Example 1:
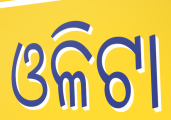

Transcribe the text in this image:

ଓଳିଟା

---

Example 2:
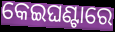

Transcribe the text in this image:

କେଇଘଣ୍ଟାରେ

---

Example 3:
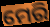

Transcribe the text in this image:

ମେରି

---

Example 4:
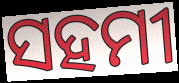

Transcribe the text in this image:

ସହମୀ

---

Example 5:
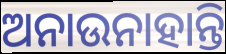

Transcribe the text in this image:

ଅନାଉନାହାନ୍ତି